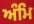
ਅੰਮਿ